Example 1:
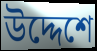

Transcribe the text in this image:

উদ্দেশে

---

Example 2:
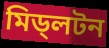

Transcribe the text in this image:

মিড্লটন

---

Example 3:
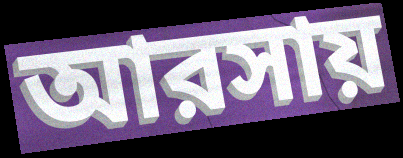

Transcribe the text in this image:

আরসায়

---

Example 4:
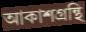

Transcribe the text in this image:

আকাশগ্রন্থি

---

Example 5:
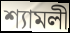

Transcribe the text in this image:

শ্যামলী